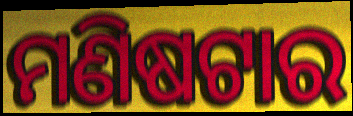
ମଣିଷଟାର